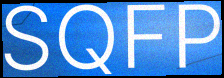
SQFP